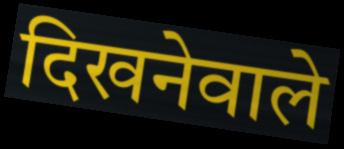
दिखनेवाले